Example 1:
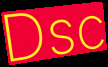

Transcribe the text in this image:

Dsc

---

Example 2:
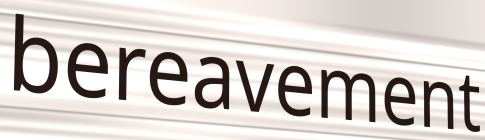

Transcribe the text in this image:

bereavement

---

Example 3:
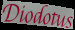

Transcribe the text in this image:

Diodotus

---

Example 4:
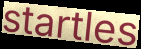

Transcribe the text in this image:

startles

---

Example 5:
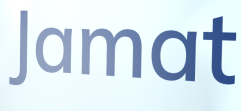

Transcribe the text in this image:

Jamat